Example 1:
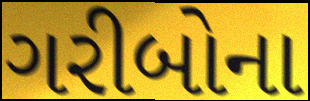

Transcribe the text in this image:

ગરીબોના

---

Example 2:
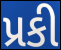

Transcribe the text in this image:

પ્રકી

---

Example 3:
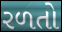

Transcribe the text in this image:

રળતો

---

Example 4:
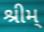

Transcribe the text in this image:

શ્રીમ્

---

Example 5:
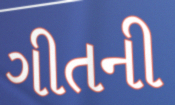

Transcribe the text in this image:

ગીતની